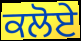
ਕਲੋਏ